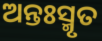
ଅନ୍ତଃସ୍ମୃତ